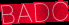
BADC